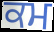
ਕਮ